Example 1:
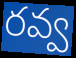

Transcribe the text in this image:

రవ్వ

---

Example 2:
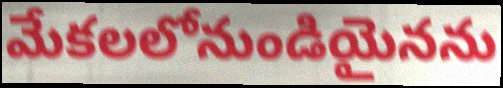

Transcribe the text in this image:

మేకలలోనుండియైనను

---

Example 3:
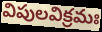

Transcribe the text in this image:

విపులవిక్రమః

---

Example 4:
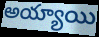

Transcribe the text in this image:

అయ్యాయి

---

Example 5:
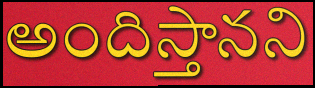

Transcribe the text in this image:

అందిస్తానని